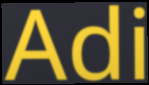
Adi